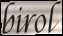
birol